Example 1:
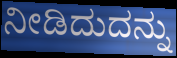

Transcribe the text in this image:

ನೀಡಿದುದನ್ನು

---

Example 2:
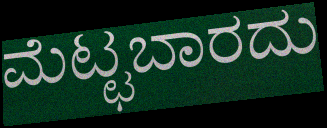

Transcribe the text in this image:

ಮೆಟ್ಟಬಾರದು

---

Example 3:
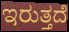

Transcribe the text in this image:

ಇರುತ್ತದೆ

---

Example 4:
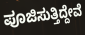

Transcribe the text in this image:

ಪೂಜಿಸುತ್ತಿದ್ದೇವೆ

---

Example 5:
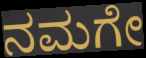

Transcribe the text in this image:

ನಮಗೇ